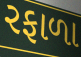
રફાળા